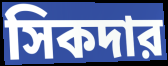
সিকদার